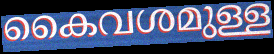
കൈവശമുള്ള